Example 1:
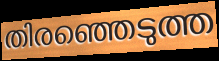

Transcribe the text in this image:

തിരഞ്ഞെടുത്ത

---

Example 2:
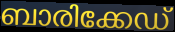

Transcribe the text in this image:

ബാരിക്കേഡ്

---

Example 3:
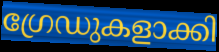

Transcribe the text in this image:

ഗ്രേഡുകളാക്കി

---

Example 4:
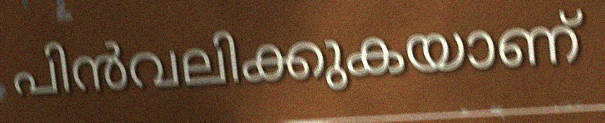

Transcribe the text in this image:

പിൻവലിക്കുകയാണ്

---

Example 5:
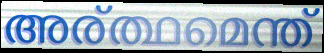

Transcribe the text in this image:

അര്ത്ഥമെന്ത്